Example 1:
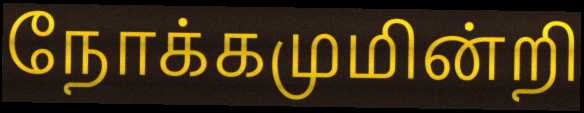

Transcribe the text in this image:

நோக்கமுமின்றி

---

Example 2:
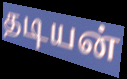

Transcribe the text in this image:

தடியன்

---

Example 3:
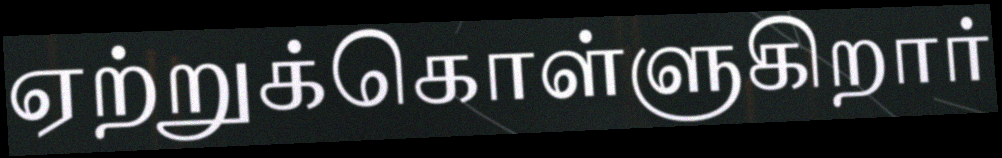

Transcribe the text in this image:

ஏற்றுக்கொள்ளுகிறார்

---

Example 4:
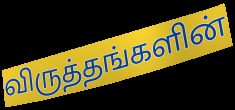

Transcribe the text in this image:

விருத்தங்களின்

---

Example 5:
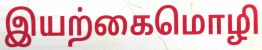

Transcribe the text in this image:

இயற்கைமொழி